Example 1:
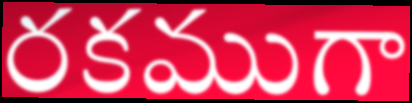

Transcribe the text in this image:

రకముగా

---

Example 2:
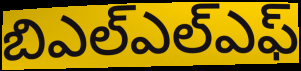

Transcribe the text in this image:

బిఎల్ఎల్ఎఫ్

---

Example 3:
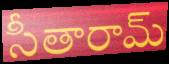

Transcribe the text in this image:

సీతారామ్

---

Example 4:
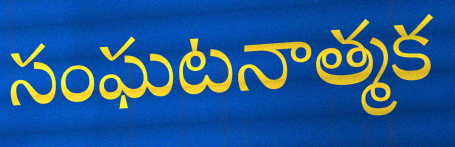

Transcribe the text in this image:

సంఘటనాత్మక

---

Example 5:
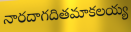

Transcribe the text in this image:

నారదాగదితమాకలయ్య